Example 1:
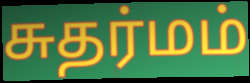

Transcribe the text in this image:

சுதர்மம்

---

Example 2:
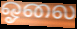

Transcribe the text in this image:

ஓலை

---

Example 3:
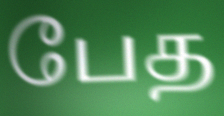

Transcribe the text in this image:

பேத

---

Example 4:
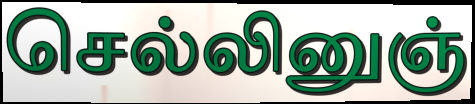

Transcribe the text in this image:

செல்லினுஞ்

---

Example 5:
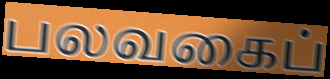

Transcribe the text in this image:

பலவகைப்